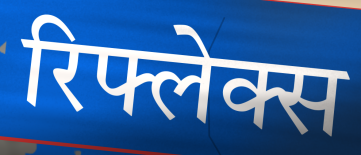
रिफ्लेक्स